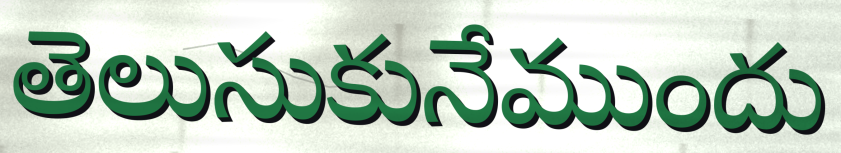
తెలుసుకునేముందు